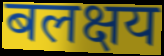
बलक्षय